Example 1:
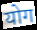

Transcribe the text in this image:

योग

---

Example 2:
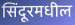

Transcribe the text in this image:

सिंदूरमधील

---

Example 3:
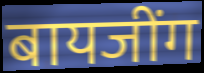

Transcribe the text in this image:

बायजींग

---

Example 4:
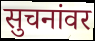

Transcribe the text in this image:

सुचनांवर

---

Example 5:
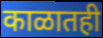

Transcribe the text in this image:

काळातही